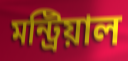
মন্ট্রিয়াল